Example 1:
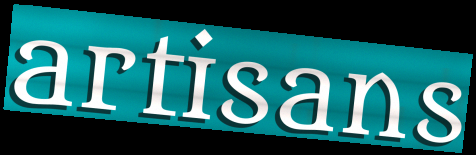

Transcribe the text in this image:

artisans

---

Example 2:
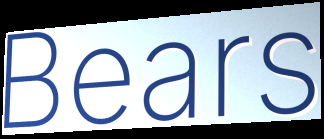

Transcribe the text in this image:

Bears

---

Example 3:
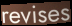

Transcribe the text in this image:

revises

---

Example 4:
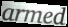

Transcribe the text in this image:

armed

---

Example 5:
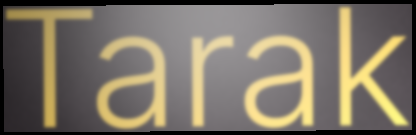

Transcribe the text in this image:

Tarak